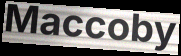
Maccoby